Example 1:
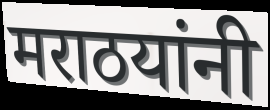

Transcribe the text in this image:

मराठयांनी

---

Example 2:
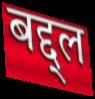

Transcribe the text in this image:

बद्द्ल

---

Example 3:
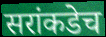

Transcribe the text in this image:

सरांकडेच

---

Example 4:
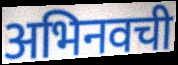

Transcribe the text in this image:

अभिनवची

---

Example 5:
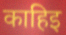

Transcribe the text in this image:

काहिइ